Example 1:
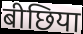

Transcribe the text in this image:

बीछिया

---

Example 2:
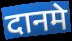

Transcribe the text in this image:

दानमे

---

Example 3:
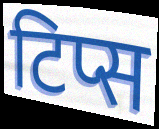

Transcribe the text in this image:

टिप्‍स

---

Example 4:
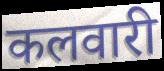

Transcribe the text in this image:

कलवारी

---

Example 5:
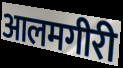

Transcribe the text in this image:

आलमगीरी